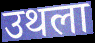
उथला